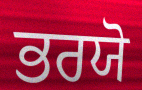
ਭਰਯੋ